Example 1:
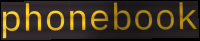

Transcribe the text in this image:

phonebook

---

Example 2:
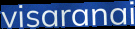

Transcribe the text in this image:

visaranai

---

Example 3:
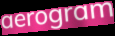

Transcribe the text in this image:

aerogram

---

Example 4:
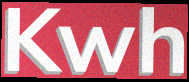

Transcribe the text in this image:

Kwh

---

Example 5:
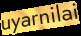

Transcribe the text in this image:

uyarnilai